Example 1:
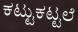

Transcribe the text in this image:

ಕಟ್ಟುಕಟ್ಟಲೆ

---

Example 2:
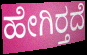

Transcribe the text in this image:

ಹೇಗಿರ್‍ತದೆ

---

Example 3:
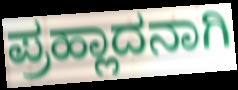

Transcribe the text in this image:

ಪ್ರಹ್ಲಾದನಾಗಿ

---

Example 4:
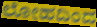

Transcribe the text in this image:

ಲೋಹದಿಂದ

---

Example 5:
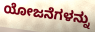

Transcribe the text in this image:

ಯೋಜನೆಗಳನ್ನು